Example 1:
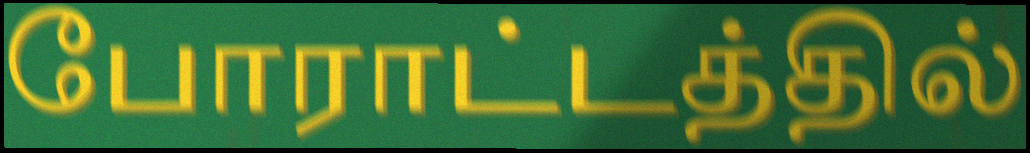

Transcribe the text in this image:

போராட்டத்தில்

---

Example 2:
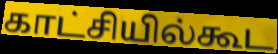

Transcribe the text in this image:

காட்சியில்கூட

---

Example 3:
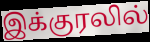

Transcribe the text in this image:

இக்குரலில்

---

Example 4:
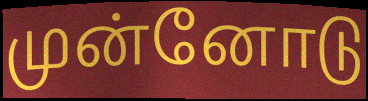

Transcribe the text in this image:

முன்னோடு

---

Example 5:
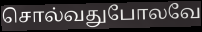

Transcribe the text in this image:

சொல்வதுபோலவே